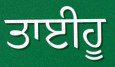
ਤਾਈਹੂ